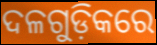
ଦଳଗୁଡ଼ିକରେ